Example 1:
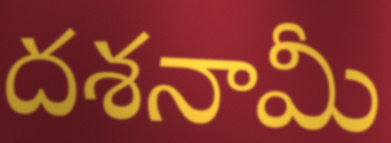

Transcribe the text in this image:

దశనామీ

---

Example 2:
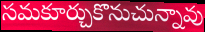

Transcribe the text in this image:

సమకూర్చుకొనుచున్నావు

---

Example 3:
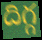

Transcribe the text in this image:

దిగ్గ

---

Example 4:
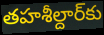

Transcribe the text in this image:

తహశీల్దార్‌కు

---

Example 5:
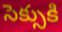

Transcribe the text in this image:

సెక్సుకి